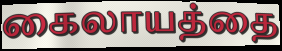
கைலாயத்தை